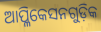
ଆପ୍ଳିକେସନଗୁଡ଼ିକ